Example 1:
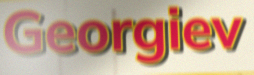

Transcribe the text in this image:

Georgiev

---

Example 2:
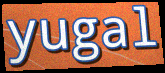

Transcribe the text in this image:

yugal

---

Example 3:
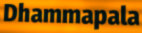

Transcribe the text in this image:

Dhammapala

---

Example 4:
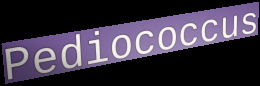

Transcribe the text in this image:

Pediococcus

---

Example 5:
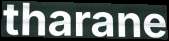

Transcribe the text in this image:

tharane